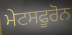
ਮੇਟਸਫੂਰੋਨ